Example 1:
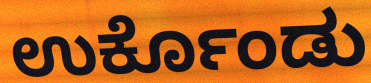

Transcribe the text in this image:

ಉರ್ಕೊಂಡು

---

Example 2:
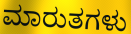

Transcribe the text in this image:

ಮಾರುತಗಳು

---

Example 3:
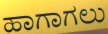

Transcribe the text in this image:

ಹಾಗಾಗಲು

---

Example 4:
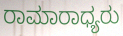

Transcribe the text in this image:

ರಾಮಾರಾಧ್ಯರು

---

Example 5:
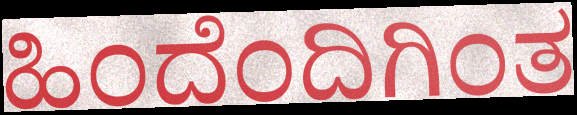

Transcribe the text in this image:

ಹಿಂದೆಂದಿಗಿಂತ